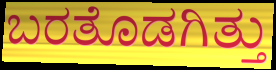
ಬರತೊಡಗಿತ್ತು